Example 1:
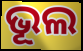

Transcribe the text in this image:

ଭୂଲ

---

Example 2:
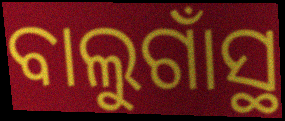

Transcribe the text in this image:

ବାଲୁଗାଁସ୍ଥ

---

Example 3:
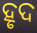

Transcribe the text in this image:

ହୃଦ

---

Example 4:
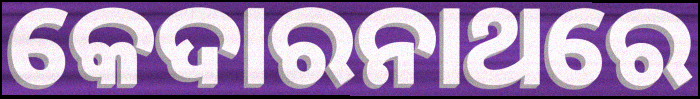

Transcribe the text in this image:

କେଦାରନାଥରେ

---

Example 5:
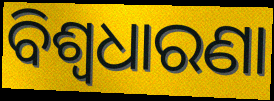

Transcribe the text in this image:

ବିଶ୍ୱଧାରଣା